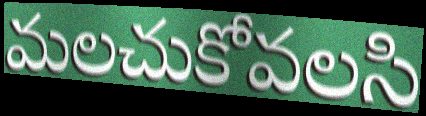
మలచుకోవలసి